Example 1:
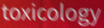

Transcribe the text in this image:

toxicology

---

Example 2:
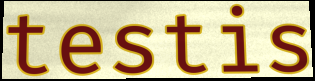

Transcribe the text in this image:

testis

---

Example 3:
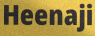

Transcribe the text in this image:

Heenaji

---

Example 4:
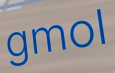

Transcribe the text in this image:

gmol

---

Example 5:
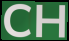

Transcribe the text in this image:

CH